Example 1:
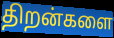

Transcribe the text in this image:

திறன்களை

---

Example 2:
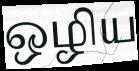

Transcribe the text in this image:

ஒழிய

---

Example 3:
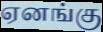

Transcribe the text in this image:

ஏனங்கு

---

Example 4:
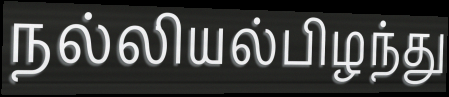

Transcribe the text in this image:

நல்லியல்பிழந்து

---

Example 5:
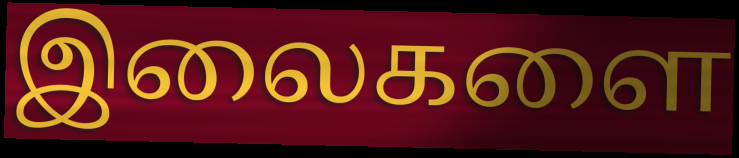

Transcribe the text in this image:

இலைகளை